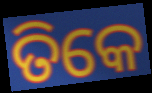
ତିକେ